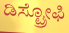
ಡಿಸ್ಟ್ರೋಫಿ